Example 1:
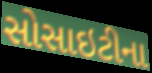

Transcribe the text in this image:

સોસાઇટીના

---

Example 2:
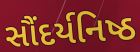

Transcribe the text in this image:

સૌંદર્યનિષ્ઠ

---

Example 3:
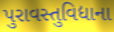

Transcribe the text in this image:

પુરાવસ્તુવિદ્યાના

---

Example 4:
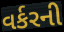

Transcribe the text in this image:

વર્કરની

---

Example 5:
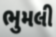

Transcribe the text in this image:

ભુમલી